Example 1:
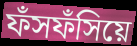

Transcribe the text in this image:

ফঁসফঁসিয়ে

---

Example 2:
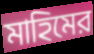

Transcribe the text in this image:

মাহিমের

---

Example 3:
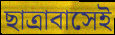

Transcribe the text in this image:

ছাত্রাবাসেই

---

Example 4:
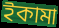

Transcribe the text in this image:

ইকামা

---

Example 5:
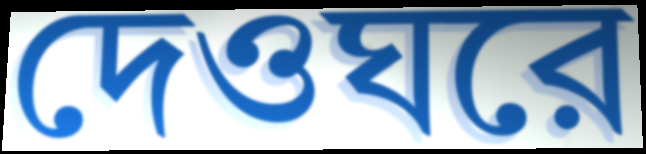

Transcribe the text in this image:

দেওঘরে